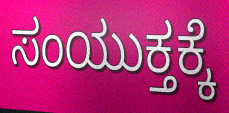
ಸಂಯುಕ್ತಕ್ಕೆ